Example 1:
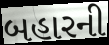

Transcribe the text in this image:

બહારની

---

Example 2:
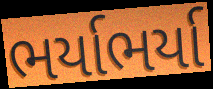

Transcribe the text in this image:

ભર્યાભર્યા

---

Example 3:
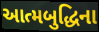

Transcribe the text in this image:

આત્મબુદ્ધિના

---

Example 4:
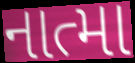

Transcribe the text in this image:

નાત્મા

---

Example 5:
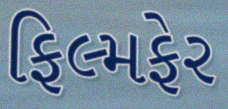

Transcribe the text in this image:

ફિલ્મફેર